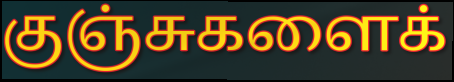
குஞ்சுகளைக்